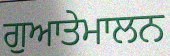
ਗੁਆਤੇਮਾਲਨ